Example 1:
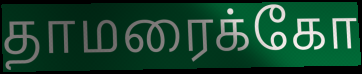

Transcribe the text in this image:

தாமரைக்கோ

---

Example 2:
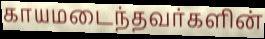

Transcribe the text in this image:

காயமடைந்தவர்களின்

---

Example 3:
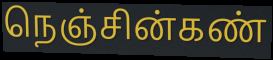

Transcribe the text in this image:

நெஞ்சின்கண்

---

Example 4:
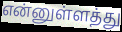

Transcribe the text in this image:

என்னுள்ளத்து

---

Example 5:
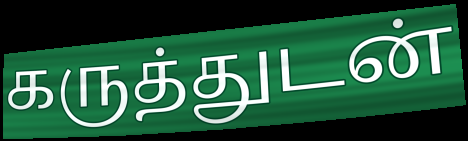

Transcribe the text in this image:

கருத்துடன்